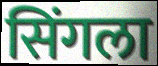
सिंगला